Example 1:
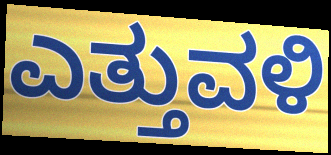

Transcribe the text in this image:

ಎತ್ತುವಳಿ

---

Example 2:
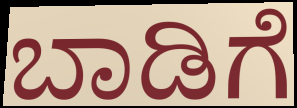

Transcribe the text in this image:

ಬಾಡಿಗೆ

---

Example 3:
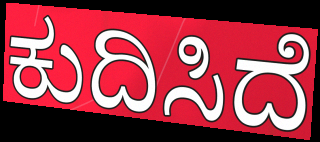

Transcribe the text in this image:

ಕುದಿಸಿದೆ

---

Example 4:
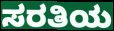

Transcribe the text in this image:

ಸರತಿಯ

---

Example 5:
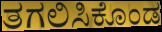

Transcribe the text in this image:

ತಗಲಿಸಿಕೊಂಡ